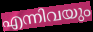
എന്നിവയും